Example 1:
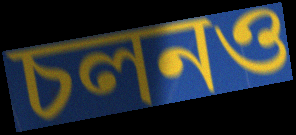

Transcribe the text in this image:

চলনও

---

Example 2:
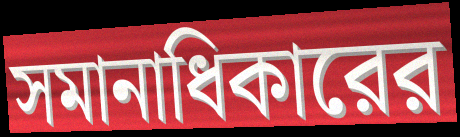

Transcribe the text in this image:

সমানাধিকারের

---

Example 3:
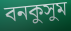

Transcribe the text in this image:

বনকুসুম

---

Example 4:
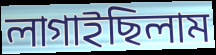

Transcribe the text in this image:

লাগাইছিলাম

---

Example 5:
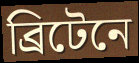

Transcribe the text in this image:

ব্রিটেনে